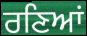
ਰਣਿਆਂ